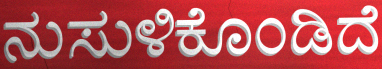
ನುಸುಳಿಕೊಂಡಿದೆ